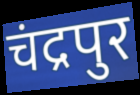
चंद्रपुर